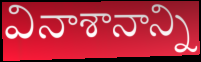
వినాశానాన్ని